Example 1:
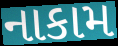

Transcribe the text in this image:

નાકામ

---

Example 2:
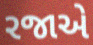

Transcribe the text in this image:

રજાએ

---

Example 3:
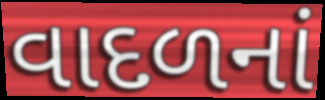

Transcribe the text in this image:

વાદળનાં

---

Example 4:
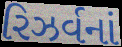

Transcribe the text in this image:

રિઝર્વનાં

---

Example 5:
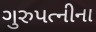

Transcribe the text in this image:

ગુરુપત્નીના